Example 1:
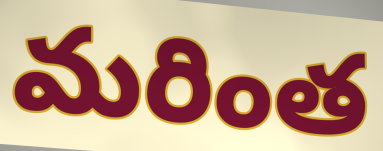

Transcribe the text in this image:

మరింత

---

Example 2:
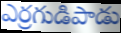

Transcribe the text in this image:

ఎర్రగుడిపాడు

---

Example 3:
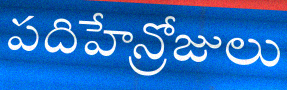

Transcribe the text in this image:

పదిహేన్రోజులు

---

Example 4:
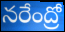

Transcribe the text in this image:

నరేంద్రో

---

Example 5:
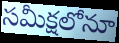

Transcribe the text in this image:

సమీక్షలోనూ